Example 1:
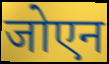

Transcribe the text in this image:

जोएन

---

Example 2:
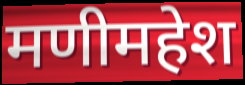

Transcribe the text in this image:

मणीमहेश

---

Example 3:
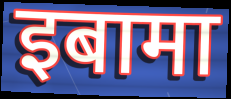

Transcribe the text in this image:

इबामा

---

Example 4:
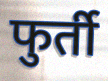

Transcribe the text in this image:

फुर्ती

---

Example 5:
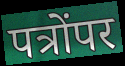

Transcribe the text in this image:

पत्रोंपर